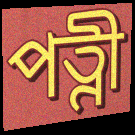
পত্নী